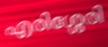
എരിശ്ശേരി